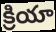
క్రియా